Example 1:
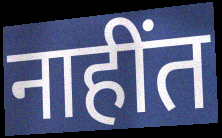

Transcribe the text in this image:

नाहींत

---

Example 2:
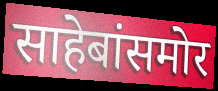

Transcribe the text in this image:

साहेबांसमोर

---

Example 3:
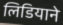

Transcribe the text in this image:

लिडियाने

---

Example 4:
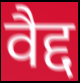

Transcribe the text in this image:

वैद्द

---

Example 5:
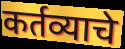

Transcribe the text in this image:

कर्तव्याचे